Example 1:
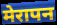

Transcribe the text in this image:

मेरापन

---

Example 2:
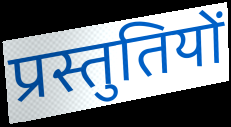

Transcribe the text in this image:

प्रस्तुतियों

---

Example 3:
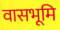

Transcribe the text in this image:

वासभूमि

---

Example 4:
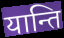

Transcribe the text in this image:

यान्ति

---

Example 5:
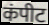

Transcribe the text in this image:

कंपीट